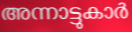
അന്നാട്ടുകാർ